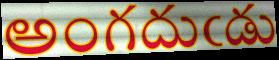
అంగదుఁడు